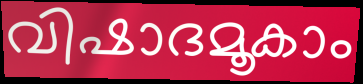
വിഷാദമൂകാം